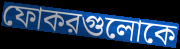
ফোকরগুলোকে